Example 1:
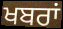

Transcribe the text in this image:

ਖਬਰਾਂ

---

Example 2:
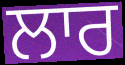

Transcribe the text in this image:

ਲਾਰ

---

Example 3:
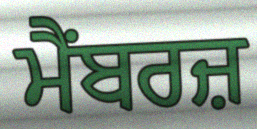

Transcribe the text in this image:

ਮੈਂਬਰਜ਼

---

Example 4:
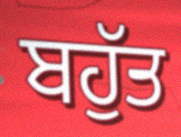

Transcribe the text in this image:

ਬਹੁੱਤ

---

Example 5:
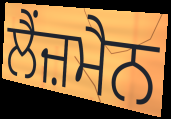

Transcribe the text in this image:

ਲੈਂਜ਼ਮੈਨ